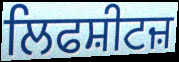
ਲਿਫਸ਼ੀਟਜ਼